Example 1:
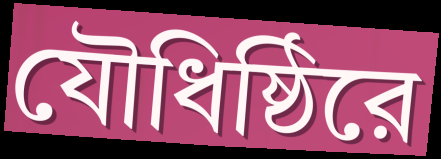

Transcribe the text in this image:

যৌধিষ্ঠিরে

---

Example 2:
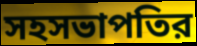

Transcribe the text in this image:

সহসভাপতির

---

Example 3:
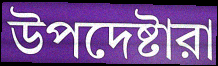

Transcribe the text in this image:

উপদেষ্টারা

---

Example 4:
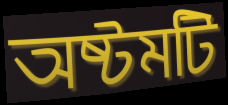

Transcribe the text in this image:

অষ্টমটি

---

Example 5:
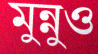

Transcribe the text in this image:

মুন্নুও